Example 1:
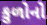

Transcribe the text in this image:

કુળોનો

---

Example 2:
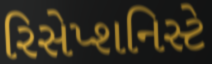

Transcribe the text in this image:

રિસેપ્શનિસ્ટે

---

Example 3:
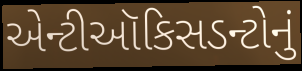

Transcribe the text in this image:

એન્ટીઑકિસડન્ટોનું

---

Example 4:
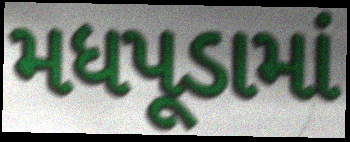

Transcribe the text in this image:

મધપૂડામાં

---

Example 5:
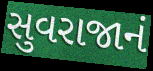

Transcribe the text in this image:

સુવરાજાનં